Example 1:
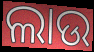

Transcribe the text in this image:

ଲାଉ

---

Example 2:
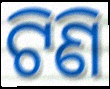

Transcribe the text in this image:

ଟିଣି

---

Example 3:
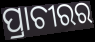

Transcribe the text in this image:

ପ୍ରାଚୀରର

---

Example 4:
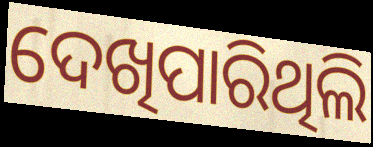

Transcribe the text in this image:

ଦେଖିପାରିଥିଲି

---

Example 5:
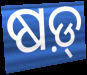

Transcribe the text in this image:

ଷଡ଼୍